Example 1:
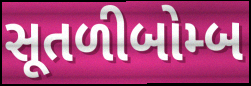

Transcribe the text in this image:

સૂતળીબોમ્બ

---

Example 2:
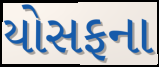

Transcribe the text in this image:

યોસફના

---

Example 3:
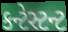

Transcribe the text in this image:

કન્ટેસ્ટન્ટ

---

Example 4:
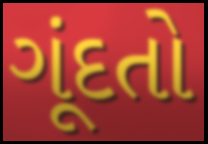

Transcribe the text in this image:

ગૂંદતો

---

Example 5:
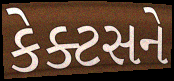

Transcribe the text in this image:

કેક્ટસને